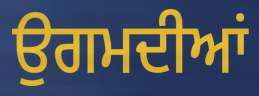
ਉਗਮਦੀਆਂ